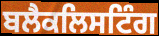
ਬਲੈਕਲਿਸਟਿੰਗ